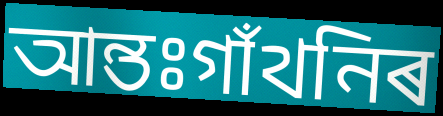
আন্তঃগাঁথনিৰ